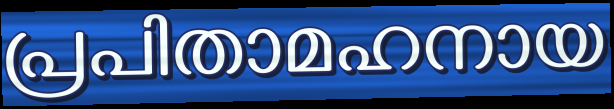
പ്രപിതാമഹനായ